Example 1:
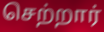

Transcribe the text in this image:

செற்றார்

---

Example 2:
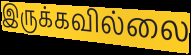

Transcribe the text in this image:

இருக்கவில்லை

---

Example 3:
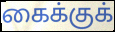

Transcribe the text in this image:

கைக்குக்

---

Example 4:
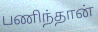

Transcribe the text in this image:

பணிந்தான்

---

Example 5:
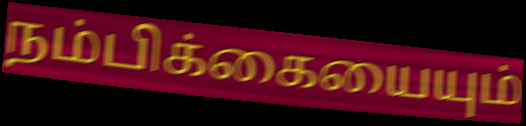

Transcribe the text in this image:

நம்பிக்கையையும்